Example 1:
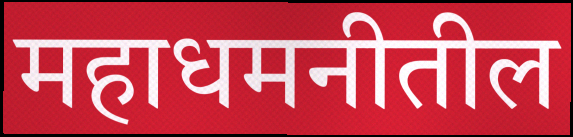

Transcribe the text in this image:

महाधमनीतील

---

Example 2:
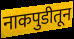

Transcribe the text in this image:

नाकपुडीतून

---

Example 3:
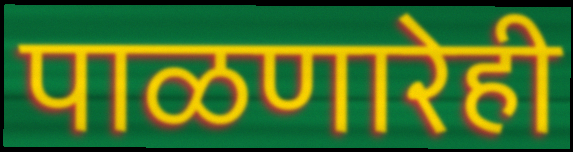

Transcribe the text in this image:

पाळणारेही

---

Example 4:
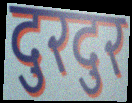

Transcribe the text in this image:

दुरदुर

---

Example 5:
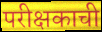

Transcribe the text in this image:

परीक्षकाची